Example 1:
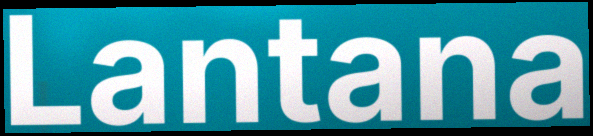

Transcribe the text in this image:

Lantana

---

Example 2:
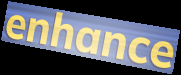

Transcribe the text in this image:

enhance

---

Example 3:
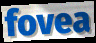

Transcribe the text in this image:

fovea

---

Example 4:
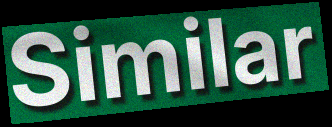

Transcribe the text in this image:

Similar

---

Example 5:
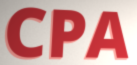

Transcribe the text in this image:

CPA